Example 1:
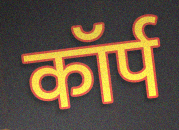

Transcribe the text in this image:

कॉर्प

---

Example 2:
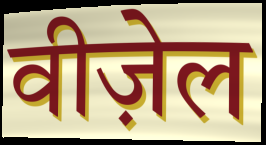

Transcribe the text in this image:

वीज़ेल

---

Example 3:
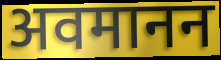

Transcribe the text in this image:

अवमानन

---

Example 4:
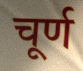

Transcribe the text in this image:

चूर्ण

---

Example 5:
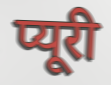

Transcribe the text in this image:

प्यूरी